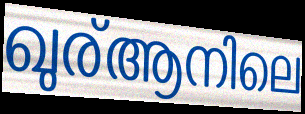
ഖുര്ആനിലെ